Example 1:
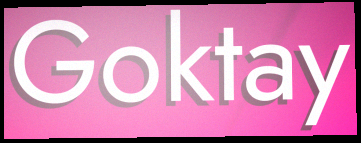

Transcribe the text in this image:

Goktay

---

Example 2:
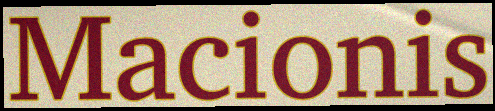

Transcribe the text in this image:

Macionis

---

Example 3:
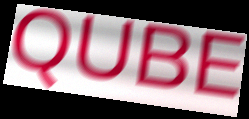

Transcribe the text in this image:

QUBE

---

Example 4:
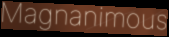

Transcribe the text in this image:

Magnanimous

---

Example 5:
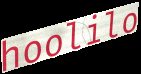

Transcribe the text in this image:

hoolilo